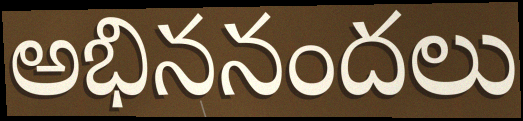
అభిననందలు